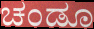
ಚಂಡೂ